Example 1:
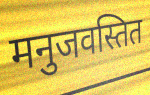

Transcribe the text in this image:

मनुजवस्तित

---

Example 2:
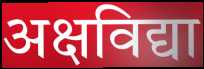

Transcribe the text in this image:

अक्षविद्या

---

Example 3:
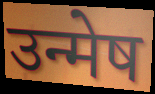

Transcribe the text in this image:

उन्मेष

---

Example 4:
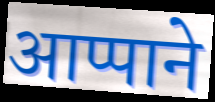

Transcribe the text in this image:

आप्पाने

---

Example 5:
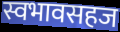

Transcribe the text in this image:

स्वभावसहज